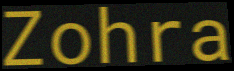
Zohra